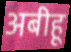
अबीहू